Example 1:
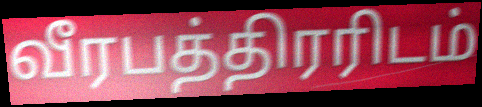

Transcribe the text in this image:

வீரபத்திரரிடம்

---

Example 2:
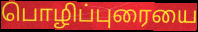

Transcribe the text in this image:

பொழிப்புரையை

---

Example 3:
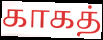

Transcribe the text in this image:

காகத்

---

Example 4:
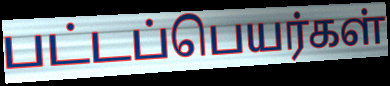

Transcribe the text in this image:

பட்டப்பெயர்கள்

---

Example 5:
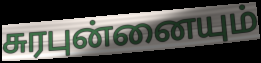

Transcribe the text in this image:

சுரபுன்னையும்